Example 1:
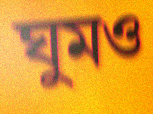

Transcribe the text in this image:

ঘুমও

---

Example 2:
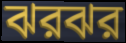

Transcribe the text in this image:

ঝরঝর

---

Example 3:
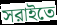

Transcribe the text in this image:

সরাইতে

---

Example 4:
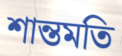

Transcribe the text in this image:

শান্তমতি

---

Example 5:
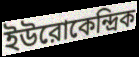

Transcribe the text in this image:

ইউরোকেন্দ্রিক